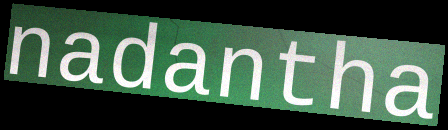
nadantha